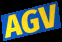
AGV